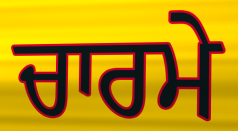
ਚਾਰਮੇ